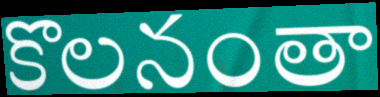
కొలనంతా